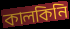
কালকিনি